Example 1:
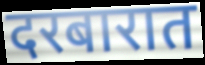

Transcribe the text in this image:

दरबारात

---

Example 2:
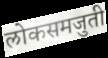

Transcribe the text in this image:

लोकसमजुती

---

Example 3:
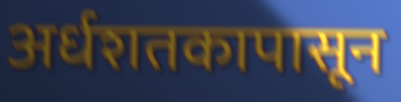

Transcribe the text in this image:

अर्धशतकापासून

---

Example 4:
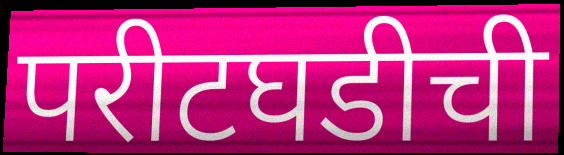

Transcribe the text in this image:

परीटघडीची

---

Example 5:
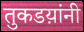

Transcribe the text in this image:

तुकडय़ांनी